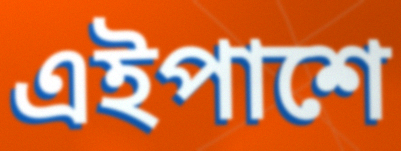
এইপাশে